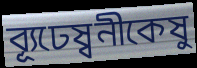
ব্যূঢেষ্বনীকেষু